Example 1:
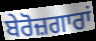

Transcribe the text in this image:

ਬੇਰੋਜ਼ਗਾਰਾਂ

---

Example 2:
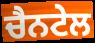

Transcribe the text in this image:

ਚੈਨਟੇਲ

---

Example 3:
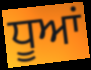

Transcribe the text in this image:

ਧੂਆਂ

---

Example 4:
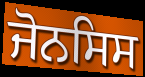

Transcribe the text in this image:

ਜੋਨਸਿਸ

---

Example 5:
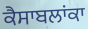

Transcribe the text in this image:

ਕੈਸਾਬਲਾਂਕਾ